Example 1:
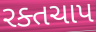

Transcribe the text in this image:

રક્તચાપ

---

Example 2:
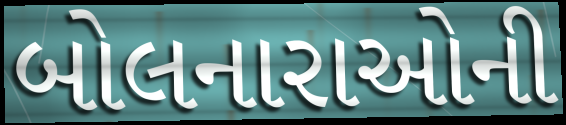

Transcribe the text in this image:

બોલનારાઓની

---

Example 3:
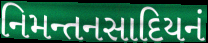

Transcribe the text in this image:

નિમન્તનસાદિયનં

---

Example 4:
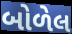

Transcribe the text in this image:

બોળેલ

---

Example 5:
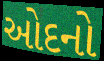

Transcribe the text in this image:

ઓદનો